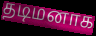
தடிமனாக